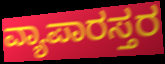
ವ್ಯಾಪಾರಸ್ತರ